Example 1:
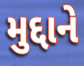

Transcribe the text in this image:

મુદ્દાને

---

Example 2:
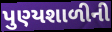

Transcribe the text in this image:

પુણ્યશાળીની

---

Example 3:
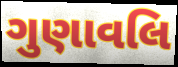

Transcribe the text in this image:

ગુણાવલિ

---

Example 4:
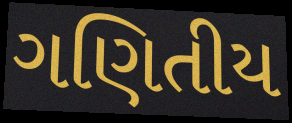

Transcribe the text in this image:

ગણિતીય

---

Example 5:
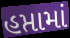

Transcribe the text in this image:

હપ્તામાં